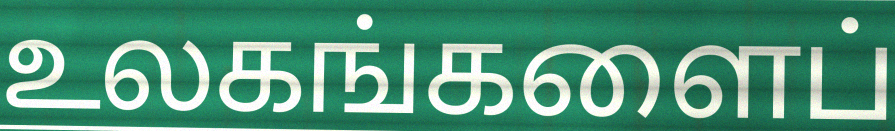
உலகங்களைப்